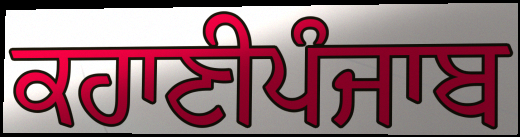
ਕਹਾਣੀਪੰਜਾਬ